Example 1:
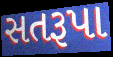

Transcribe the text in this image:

સતરૂપા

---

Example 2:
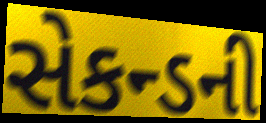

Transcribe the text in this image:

સેકન્ડની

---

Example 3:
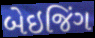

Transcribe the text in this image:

બેઇજિંગ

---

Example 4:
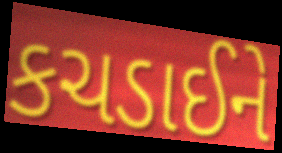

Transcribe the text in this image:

કચડાઈને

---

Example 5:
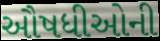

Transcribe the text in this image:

ઔષધીઓની